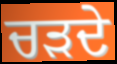
ਚੜਦੇ